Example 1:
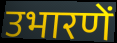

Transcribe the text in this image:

उभारणें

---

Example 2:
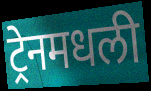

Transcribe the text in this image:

ट्रेनमधली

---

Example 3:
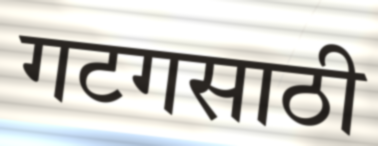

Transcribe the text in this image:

गटगसाठी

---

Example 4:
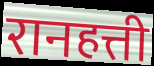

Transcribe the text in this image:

रानहत्ती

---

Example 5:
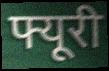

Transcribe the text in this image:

फ्यूरी